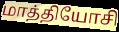
மாத்தியோசி